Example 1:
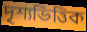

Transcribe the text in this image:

দৃশ্যভিত্তিক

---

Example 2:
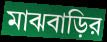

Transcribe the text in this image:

মাঝবাড়ির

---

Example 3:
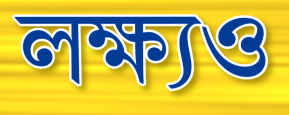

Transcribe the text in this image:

লক্ষ্যও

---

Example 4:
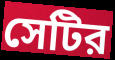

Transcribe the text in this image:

সেটির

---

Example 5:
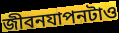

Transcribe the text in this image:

জীবনযাপনটাও